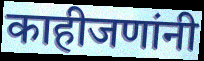
काहीजणांनी